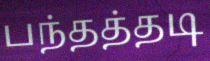
பந்தத்தடி